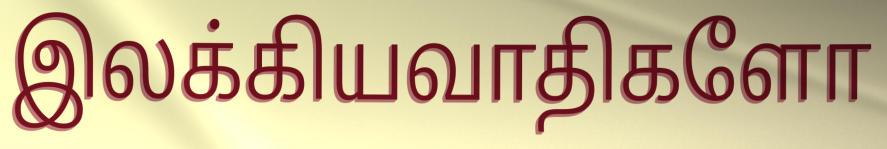
இலக்கியவாதிகளோ